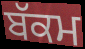
ਬੱਕਮ